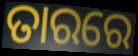
ତାରରେ